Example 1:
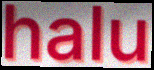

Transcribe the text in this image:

halu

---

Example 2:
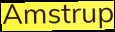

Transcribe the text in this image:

Amstrup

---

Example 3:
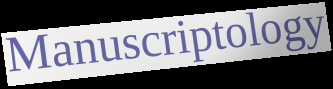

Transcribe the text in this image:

Manuscriptology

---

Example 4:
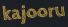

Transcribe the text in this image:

kajooru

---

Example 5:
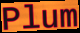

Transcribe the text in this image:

Plum